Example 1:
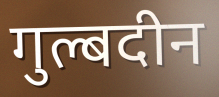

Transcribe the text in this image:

गुल्बदीन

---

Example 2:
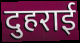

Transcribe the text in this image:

दुहराई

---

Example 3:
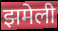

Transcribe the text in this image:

झमेली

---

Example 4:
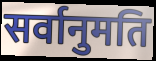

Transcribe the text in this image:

सर्वानुमति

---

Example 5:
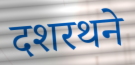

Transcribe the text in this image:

दशरथने